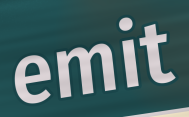
emit